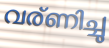
വര്ണിച്ചു